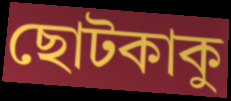
ছোটকাকু